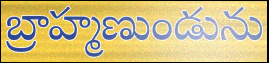
బ్రాహ్మణుండును